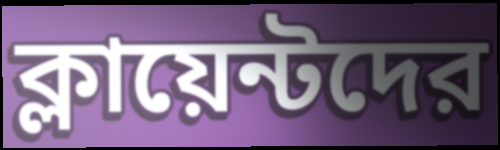
ক্লায়েন্টদের